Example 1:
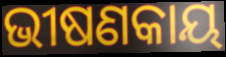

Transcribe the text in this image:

ଭୀଷଣକାୟ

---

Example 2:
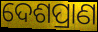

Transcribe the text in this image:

ଦେଶପ୍ରାଣ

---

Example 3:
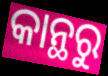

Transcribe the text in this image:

କାନ୍ଥରୁ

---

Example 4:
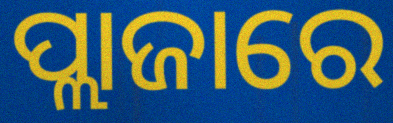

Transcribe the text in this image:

ପ୍ଲାଜାରେ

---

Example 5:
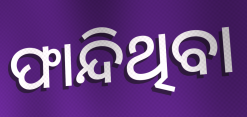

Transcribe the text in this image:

ଫାନ୍ଦିଥିବା